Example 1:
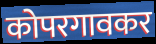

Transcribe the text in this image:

कोपरगावकर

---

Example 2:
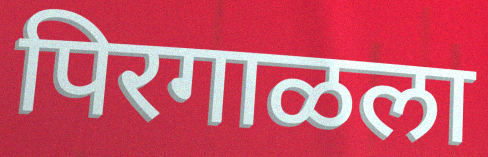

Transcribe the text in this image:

पिरगाळला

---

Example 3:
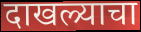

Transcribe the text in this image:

दाखल्याचा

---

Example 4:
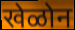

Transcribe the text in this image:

खेळोन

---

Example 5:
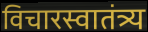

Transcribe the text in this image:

विचारस्वातंत्र्य